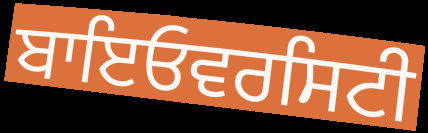
ਬਾਇਓਵਰਸਿਟੀ